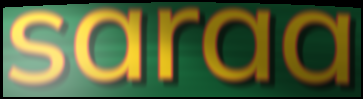
saraa